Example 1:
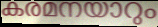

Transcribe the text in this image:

കരമനയാറും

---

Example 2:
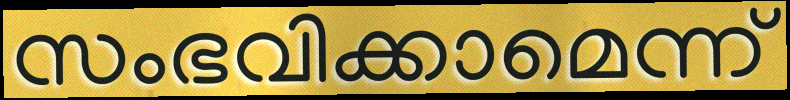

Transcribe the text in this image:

സംഭവിക്കാമെന്ന്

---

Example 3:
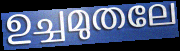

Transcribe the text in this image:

ഉച്ചമുതലേ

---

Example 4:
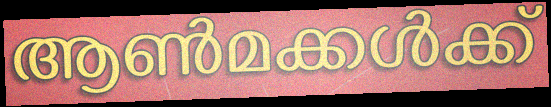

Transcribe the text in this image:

ആൺമക്കൾക്ക്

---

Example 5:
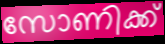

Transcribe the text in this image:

സോണിക്ക്